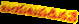
బయటపడినవే